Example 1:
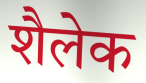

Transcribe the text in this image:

शैलेक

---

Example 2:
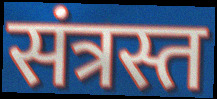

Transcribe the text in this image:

संत्रस्त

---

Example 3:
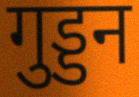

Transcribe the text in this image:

गुड्डन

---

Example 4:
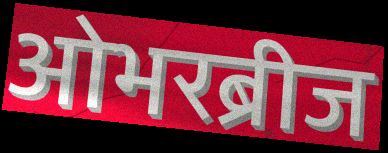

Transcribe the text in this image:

ओभरब्रीज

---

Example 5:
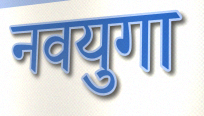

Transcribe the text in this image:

नवयुगा